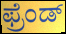
ಫ್ರೆಂಡ್